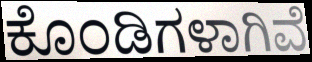
ಕೊಂಡಿಗಳಾಗಿವೆ